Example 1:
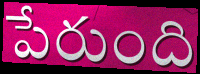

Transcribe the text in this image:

పేరుంది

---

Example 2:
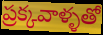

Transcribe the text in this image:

ప్రక్కవాళ్ళతో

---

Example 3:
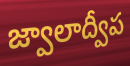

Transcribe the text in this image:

జ్వాలాద్వీప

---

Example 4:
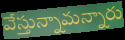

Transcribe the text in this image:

వేస్తున్నామన్నారు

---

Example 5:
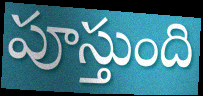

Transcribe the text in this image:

పూస్తుంది